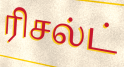
ரிசல்ட்